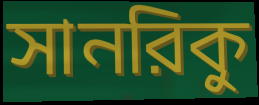
সানরিকু